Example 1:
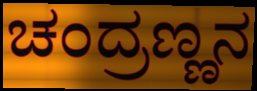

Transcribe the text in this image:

ಚಂದ್ರಣ್ಣನ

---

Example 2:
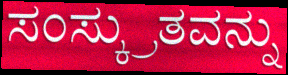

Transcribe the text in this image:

ಸಂಸ್ಕ್ರುತವನ್ನು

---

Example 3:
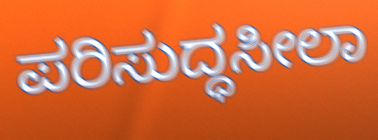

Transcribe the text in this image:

ಪರಿಸುದ್ಧಸೀಲಾ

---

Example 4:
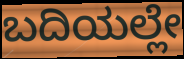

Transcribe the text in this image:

ಬದಿಯಲ್ಲೇ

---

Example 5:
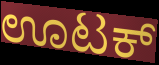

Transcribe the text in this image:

ಊಟಕ್